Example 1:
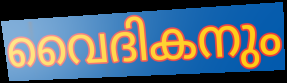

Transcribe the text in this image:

വൈദികനും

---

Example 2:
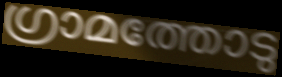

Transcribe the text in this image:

ഗ്രാമത്തോടു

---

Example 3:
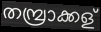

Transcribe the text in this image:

തമ്പ്രാക്കള്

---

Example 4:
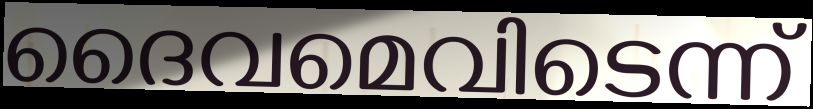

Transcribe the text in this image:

ദൈവമെവിടെന്ന്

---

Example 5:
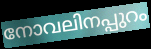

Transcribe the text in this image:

നോവലിനപ്പുറം